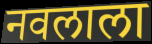
नवलाला